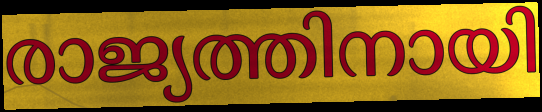
രാജ്യത്തിനായി